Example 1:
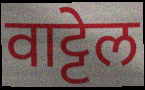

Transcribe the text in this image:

वाट्टेल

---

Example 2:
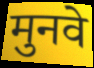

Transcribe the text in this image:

मुनवे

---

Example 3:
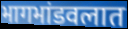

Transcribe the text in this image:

भागभांडवलात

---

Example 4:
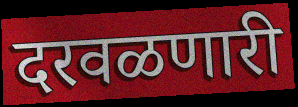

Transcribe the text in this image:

दरवळणारी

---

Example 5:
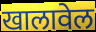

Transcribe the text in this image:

खालावेल